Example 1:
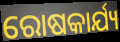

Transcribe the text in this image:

ରୋଷକାର୍ଯ୍ୟ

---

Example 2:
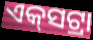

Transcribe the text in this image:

ଏକ୍‍ସଟ୍ରା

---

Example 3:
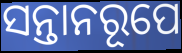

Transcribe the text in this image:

ସନ୍ତାନରୂପେ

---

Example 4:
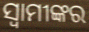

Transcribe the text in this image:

ସ୍ୱାମୀଙ୍କର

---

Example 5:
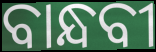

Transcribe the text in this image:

ବାନ୍ଧବୀ